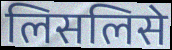
लिसलिसे